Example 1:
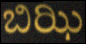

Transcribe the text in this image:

ಬಿಝಿ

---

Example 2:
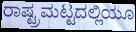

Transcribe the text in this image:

ರಾಷ್ಟ್ರಮಟ್ಟದಲ್ಲಿಯೂ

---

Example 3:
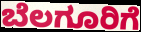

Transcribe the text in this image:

ಬೆಲಗೂರಿಗೆ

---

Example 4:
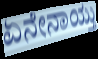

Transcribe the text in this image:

ಏನೇನಾಯ್ತು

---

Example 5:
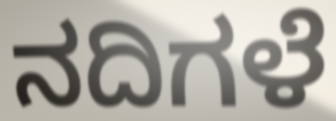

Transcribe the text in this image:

ನದಿಗಳೆ